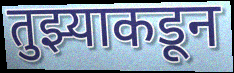
तुझ्याकडून